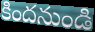
కిందనుండి